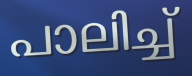
പാലിച്ച്